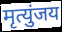
मृत्युंजय